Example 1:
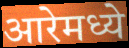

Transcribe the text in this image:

आरेमध्ये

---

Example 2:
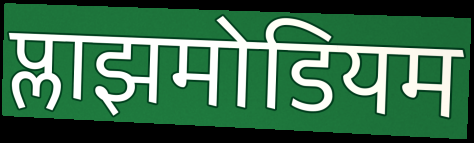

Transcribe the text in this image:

प्लाझमोडियम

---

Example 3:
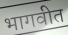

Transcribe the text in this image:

भागवीत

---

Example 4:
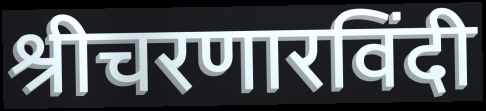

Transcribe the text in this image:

श्रीचरणारविंदी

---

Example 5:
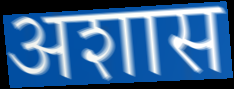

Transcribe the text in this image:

अशास